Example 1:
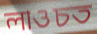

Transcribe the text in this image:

লাওচত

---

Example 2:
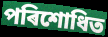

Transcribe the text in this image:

পৰিশোধিত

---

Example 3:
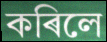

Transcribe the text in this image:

কৰিলে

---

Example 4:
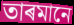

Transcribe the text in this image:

তাৰমানে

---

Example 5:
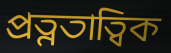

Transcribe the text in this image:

প্ৰত্নতাত্বিক